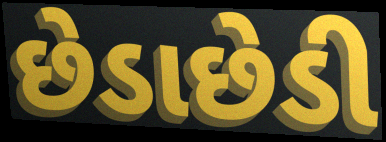
છેડાછેડી